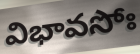
విభావసోః